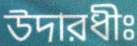
উদারধীঃ